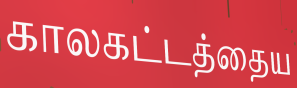
காலகட்டத்தைய